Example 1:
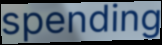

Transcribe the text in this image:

spending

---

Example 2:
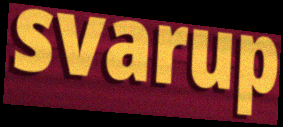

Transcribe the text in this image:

svarup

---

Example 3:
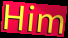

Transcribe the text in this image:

Him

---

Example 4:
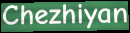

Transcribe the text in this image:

Chezhiyan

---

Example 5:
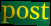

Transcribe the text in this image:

post